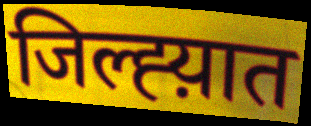
जिल्ह्य़ात